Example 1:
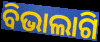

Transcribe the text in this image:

ବିଭାଲାଗି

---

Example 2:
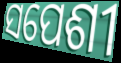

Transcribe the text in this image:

ସପେଶୀ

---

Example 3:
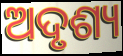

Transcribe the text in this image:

ଅଦୃଶ୍ୟ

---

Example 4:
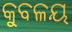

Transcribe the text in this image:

କୁବଳୟ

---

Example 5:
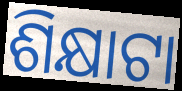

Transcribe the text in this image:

ଶିକ୍ଷାଟା